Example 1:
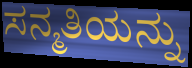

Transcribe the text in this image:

ಸನ್ಮತಿಯನ್ನು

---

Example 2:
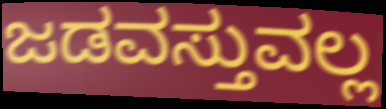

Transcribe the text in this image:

ಜಡವಸ್ತುವಲ್ಲ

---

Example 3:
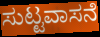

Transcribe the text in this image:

ಸುಟ್ಟವಾಸನೆ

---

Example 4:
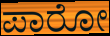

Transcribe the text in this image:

ಪಾರೋ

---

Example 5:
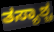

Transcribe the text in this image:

ತಸ್ಯಾಶ್ಚ